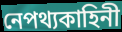
নেপথ্যকাহিনী